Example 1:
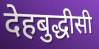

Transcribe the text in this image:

देहबुद्धीसी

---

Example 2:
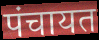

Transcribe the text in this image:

पंचायत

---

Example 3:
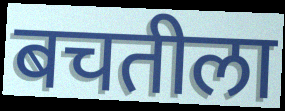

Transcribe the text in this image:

बचतीला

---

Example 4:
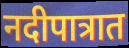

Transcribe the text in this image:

नदीपात्रात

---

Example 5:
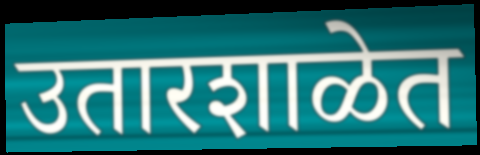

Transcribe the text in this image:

उतारशाळेत